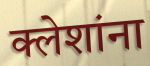
क्लेशांना